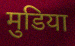
मुडिया